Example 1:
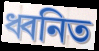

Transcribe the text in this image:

ধ্বনিত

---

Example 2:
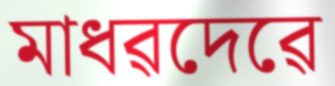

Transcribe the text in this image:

মাধৱদেৱে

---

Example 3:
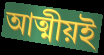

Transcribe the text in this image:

আত্মীয়ই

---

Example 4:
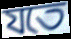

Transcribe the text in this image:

যতে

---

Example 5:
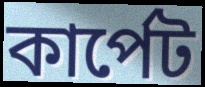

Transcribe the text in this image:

কাৰ্পেট